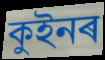
কুইনৰ